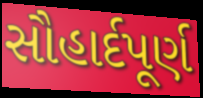
સૌહાર્દપૂર્ણ